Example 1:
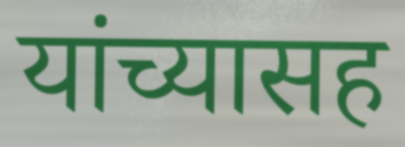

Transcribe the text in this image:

यांच्यासह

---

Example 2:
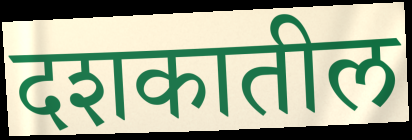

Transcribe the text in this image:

दशकातील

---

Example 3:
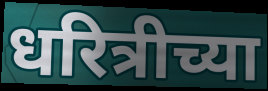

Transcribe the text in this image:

धरित्रीच्या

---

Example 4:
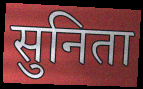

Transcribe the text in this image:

सुनिता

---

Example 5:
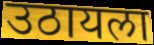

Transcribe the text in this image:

उठायला